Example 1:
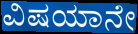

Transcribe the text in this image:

ವಿಷಯಾನೇ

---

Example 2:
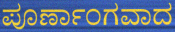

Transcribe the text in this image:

ಪೂರ್ಣಾಂಗವಾದ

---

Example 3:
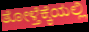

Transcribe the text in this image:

ತೋಳ್ತೆಕ್ಕೆಯಲ್ಲಿ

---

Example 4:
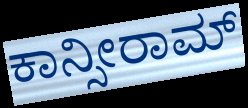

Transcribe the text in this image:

ಕಾನ್ಸೀರಾಮ್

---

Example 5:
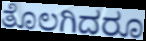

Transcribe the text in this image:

ತೊಲಗಿದರೂ